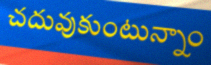
చదువుకుంటున్నాం